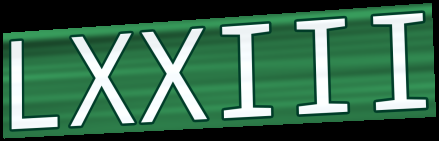
LXXIII